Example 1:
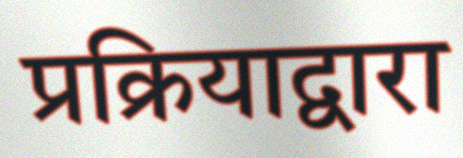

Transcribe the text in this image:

प्रक्रियाद्वारा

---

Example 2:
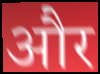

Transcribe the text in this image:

और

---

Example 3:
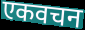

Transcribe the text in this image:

एकवचन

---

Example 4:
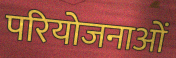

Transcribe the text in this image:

परियोजनाओं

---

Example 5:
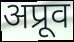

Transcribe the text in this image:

अप्रूव